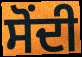
ਸੋਂਦੀ